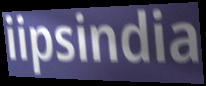
iipsindia